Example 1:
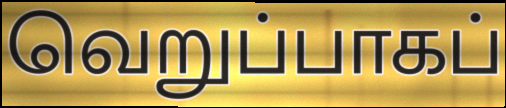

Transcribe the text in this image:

வெறுப்பாகப்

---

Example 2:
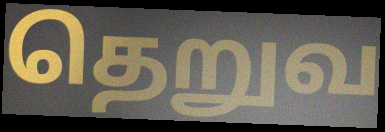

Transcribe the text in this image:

தெறுவ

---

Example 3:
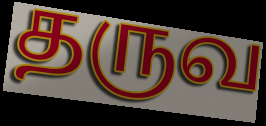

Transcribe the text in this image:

தருவ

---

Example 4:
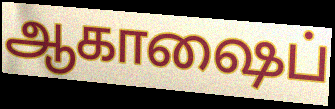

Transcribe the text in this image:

ஆகாஷைப்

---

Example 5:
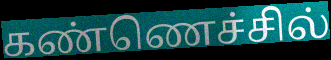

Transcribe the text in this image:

கண்ணெச்சில்